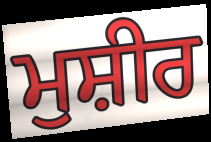
ਮੁਸ਼ੀਰ